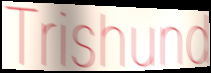
Trishund